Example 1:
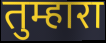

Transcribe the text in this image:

तुम्हारा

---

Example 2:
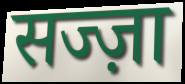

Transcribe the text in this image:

सज्ज़ा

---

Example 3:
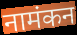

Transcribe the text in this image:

नामंकन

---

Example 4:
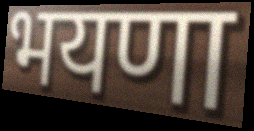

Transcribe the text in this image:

भयणा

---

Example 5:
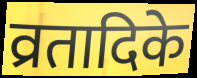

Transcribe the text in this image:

व्रतादिके